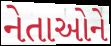
નેતાઓને